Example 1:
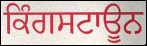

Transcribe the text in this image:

ਕਿੰਗਸਟਾਊਨ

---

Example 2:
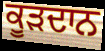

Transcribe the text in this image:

ਕੂੜਦਾਨ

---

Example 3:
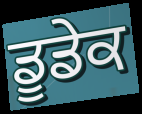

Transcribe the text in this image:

ਡੂਡੇਕ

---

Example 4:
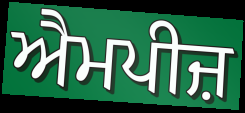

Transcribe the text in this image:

ਐਮਪੀਜ਼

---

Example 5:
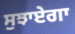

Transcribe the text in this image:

ਸੁਝਾਏਗਾ